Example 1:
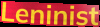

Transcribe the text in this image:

Leninist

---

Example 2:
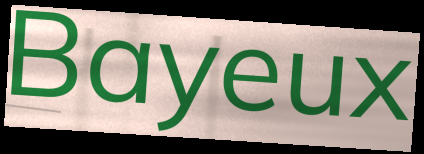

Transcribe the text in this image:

Bayeux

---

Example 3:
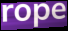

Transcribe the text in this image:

rope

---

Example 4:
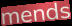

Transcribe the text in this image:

mends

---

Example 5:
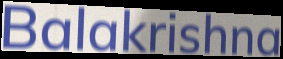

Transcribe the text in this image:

Balakrishna